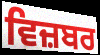
ਵਿਜ਼ਬਰ